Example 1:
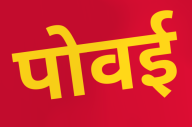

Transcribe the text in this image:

पोवई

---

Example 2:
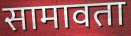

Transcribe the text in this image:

सामावता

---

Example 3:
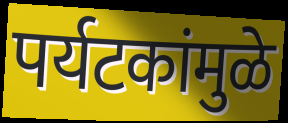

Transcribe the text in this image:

पर्यटकांमुळे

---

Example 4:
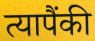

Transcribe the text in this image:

त्यापैंकी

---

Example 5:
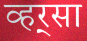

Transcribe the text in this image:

व्हर्सा